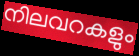
നിലവറകളും